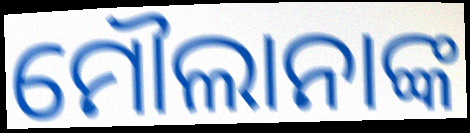
ମୌଲାନାଙ୍କ